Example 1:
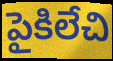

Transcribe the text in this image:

పైకిలేచి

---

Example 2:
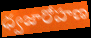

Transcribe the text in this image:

ధ్వజారోహణ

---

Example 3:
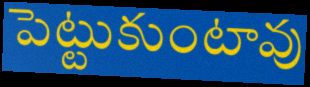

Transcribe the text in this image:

పెట్టుకుంటావు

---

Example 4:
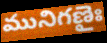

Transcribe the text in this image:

మునిగణైః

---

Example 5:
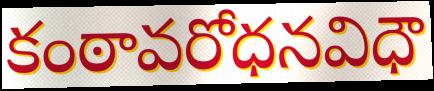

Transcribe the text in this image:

కంఠావరోధనవిధౌ